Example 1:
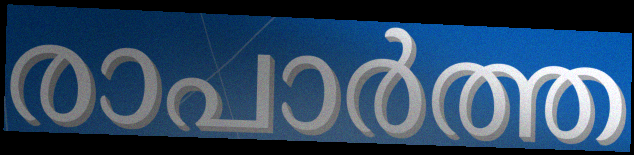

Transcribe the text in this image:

രാപാർത്ത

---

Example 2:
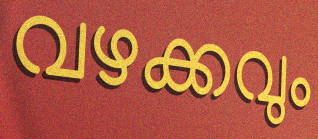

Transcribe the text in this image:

വഴക്കവും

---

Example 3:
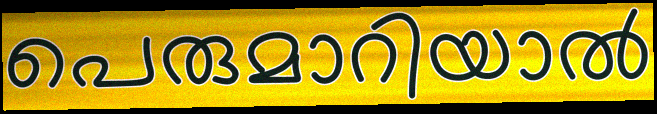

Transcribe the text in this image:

പെരുമാറിയാൽ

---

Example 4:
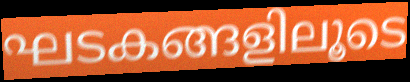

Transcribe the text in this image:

ഘടകങ്ങളിലൂടെ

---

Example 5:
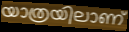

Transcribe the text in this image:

യാത്രയിലാണ്